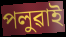
পলুৱাই